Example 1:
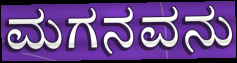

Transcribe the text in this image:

ಮಗನವನು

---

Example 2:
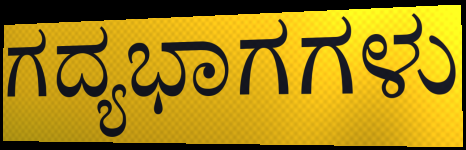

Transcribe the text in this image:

ಗದ್ಯಭಾಗಗಳು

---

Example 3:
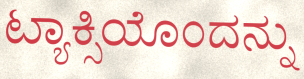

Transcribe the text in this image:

ಟ್ಯಾಕ್ಸಿಯೊಂದನ್ನು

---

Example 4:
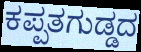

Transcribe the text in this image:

ಕಪ್ಪತಗುಡ್ಡದ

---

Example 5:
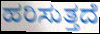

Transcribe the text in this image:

ಹರಿಸುತ್ತದೆ